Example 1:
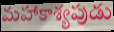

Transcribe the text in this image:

మహాకాశ్యపుడు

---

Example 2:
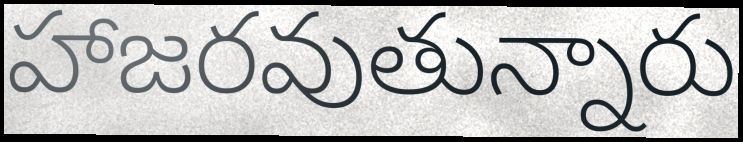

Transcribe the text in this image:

హాజరవుతున్నారు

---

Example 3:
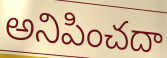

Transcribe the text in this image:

అనిపించదా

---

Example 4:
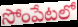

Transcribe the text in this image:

సోంపేటలో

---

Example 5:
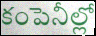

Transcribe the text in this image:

కంపెనీల్లో